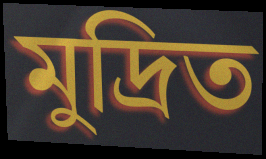
মুদ্রিত